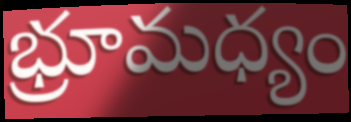
భ్రూమధ్యం